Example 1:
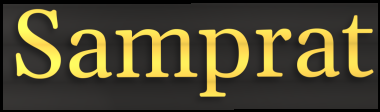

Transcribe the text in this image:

Samprat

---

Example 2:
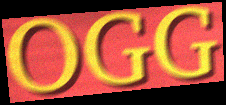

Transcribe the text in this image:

OGG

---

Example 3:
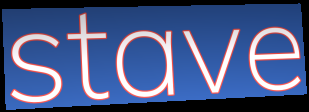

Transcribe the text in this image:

stave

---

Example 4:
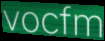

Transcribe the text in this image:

vocfm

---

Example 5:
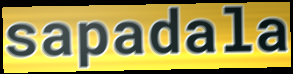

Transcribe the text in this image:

sapadala